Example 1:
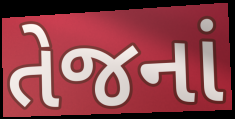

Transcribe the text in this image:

તેજનાં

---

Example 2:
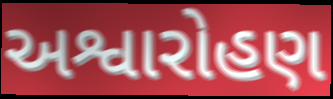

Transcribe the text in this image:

અશ્વારોહણ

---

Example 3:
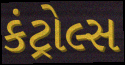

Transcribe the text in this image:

કંટ્રોલ્સ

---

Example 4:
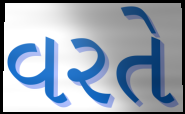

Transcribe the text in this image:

વરતે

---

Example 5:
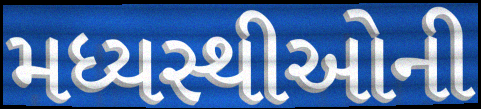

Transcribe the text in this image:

મધ્યસ્થીઓની